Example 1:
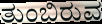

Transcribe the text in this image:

ತುಂಬಿರುವ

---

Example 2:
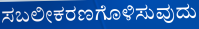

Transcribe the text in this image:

ಸಬಲೀಕರಣಗೊಳಿಸುವುದು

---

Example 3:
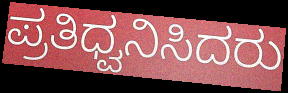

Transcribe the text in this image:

ಪ್ರತಿಧ್ವನಿಸಿದರು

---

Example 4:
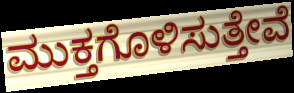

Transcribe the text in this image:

ಮುಕ್ತಗೊಳಿಸುತ್ತೇವೆ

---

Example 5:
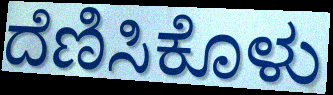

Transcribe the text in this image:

ದೆಣಿಸಿಕೊಳು